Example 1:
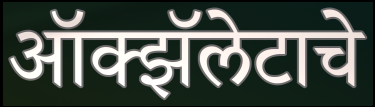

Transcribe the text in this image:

ऑक्झॅलेटाचे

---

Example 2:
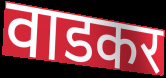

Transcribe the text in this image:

वाडकर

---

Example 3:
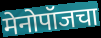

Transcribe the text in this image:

मेनोपॉजचा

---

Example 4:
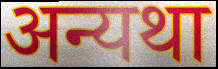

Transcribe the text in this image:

अन्यथा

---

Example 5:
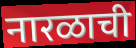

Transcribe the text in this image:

नारळाची